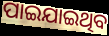
ପାଇଯାଇଥିବ